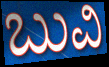
ಬುವಿ